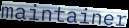
maintainer